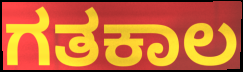
ಗತಕಾಲ